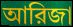
আরিজা